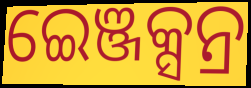
ଇେଞ୍ଜକ୍ସନ୍ର